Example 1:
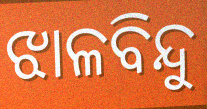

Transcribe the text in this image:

ଝାଳବିନ୍ଦୁ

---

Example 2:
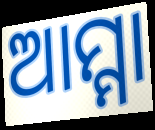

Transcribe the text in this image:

ଆମ୍ମା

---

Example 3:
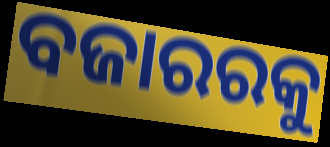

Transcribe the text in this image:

ବଜାରରକୁ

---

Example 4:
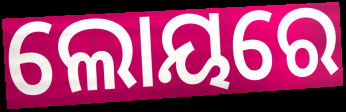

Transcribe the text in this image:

ଲୋୟରେ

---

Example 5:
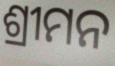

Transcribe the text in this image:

ଶ୍ରୀମନ